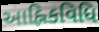
આહ્નિકવિધિ